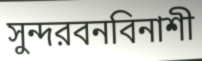
সুন্দরবনবিনাশী